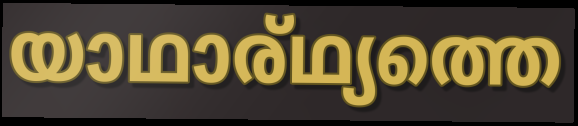
യാഥാര്ഥ്യത്തെ